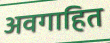
अवगाहित